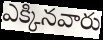
ఎక్కినవారు